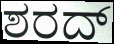
ಶರದ್